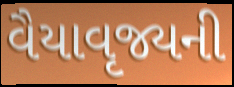
વૈયાવૃજ્યની